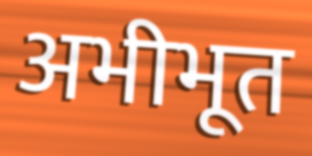
अभीभूत